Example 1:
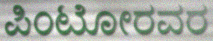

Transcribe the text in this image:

ಪಿಂಟೋರವರ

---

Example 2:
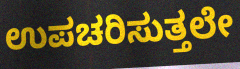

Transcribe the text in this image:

ಉಪಚರಿಸುತ್ತಲೇ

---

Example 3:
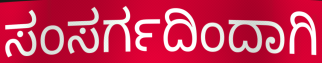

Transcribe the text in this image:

ಸಂಸರ್ಗದಿಂದಾಗಿ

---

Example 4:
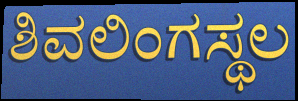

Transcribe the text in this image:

ಶಿವಲಿಂಗಸ್ಥಲ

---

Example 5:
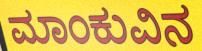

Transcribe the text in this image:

ಮಾಂಕುವಿನ